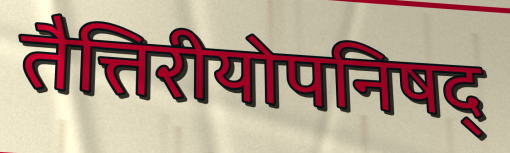
तैत्तिरीयोपनिषद्